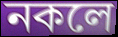
নকলে